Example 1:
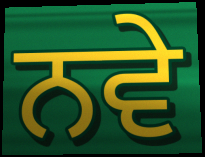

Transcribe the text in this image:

ਨਵੇ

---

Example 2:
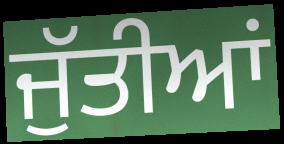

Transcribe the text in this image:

ਜੁੱਤੀਆਂ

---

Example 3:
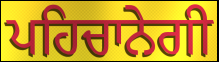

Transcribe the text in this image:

ਪਹਿਚਾਨੇਗੀ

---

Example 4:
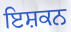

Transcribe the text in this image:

ਇਸ਼ਕਨ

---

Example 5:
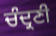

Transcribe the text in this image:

ਚੰਦ੍ਰਣੀ